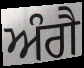
ਅੰਗੈ